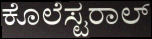
ಕೊಲೆಸ್ಟರಾಲ್